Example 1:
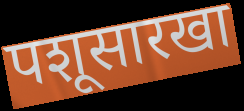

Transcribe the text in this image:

पशूसारखा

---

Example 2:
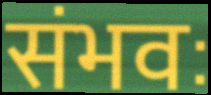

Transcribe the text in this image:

संभवः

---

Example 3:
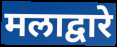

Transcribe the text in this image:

मलाद्वारे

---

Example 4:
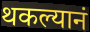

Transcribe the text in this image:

थकल्यानं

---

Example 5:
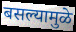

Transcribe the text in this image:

बसल्यामुळे